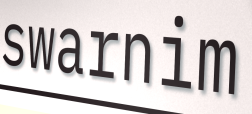
swarnim